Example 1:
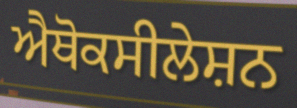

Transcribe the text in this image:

ਐਥੋਕਸੀਲੇਸ਼ਨ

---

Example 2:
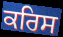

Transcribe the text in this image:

ਕਰਿਸ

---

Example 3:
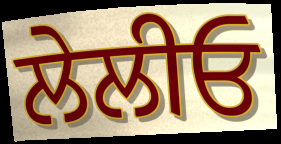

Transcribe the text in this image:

ਲੇਲੀਓ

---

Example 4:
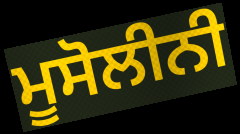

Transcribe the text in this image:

ਮੂਸੋਲੀਨੀ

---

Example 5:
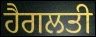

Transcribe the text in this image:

ਹੈਗਲਤੀ